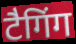
टैगिंग